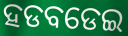
ହଡବଡେଇ